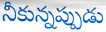
నీకున్నప్పుడు